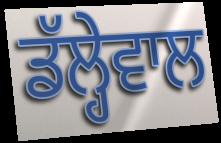
ਡੱਲ੍ਹੇਵਾਲ